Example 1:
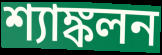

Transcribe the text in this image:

শ্যাঙ্কলন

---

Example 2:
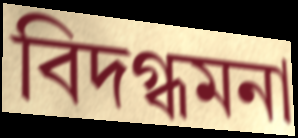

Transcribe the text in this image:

বিদগ্ধমনা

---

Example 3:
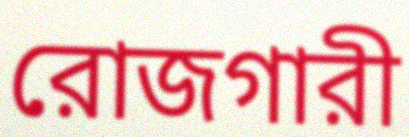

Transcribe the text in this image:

রোজগারী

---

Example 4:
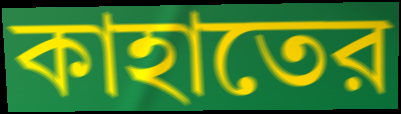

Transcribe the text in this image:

কাহাতের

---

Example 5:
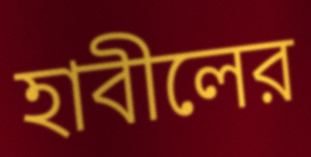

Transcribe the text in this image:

হাবীলের